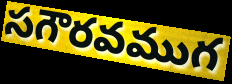
సగౌరవముగ